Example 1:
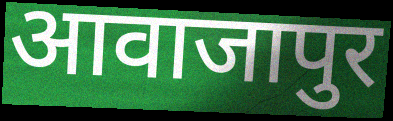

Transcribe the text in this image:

आवाजापुर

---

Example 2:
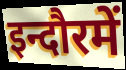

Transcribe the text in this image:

इन्दौरमें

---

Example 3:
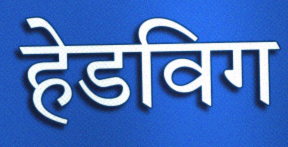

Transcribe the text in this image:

हेडविग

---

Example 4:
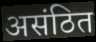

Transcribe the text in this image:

असंठित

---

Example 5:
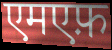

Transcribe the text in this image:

एमएफ़